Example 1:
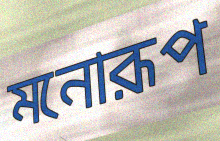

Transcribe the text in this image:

মনোরূপ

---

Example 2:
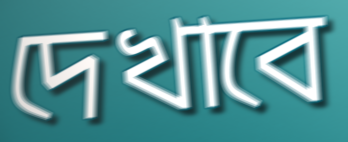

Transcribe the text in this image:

দেখাবে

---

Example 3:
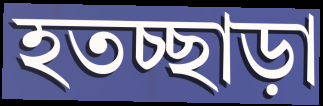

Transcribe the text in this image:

হতচ্ছাড়া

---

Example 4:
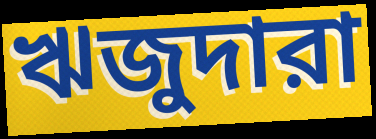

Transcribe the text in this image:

ঋজুদারা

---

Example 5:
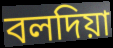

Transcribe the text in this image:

বলদিয়া